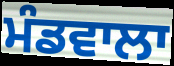
ਮੰਡਵਾਲਾ